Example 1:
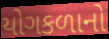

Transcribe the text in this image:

યોગકળાનો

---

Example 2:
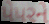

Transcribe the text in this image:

પેપરને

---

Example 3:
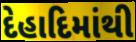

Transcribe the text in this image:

દેહાદિમાંથી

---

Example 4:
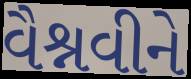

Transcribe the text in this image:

વૈશ્નવીને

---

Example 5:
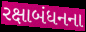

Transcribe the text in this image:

રક્ષાબંધનના